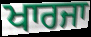
ਖਾਰਜਾ